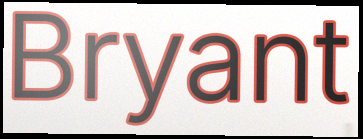
Bryant